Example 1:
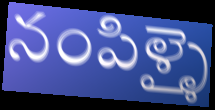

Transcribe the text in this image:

నంపిళ్ళై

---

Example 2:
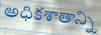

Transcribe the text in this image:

అధికశాతాన్ని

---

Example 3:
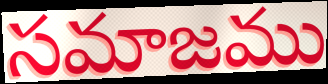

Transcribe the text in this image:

సమాజము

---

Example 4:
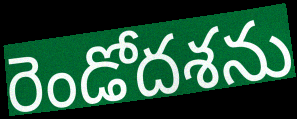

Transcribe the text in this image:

రెండోదశను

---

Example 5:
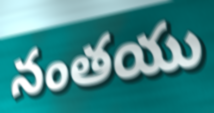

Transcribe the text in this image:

నంతయు